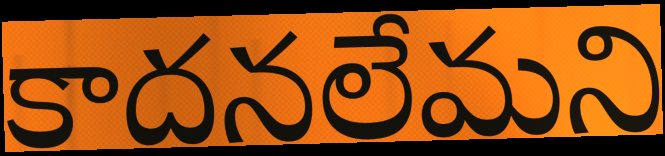
కాదనలేమని